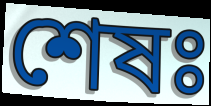
শেষঃ